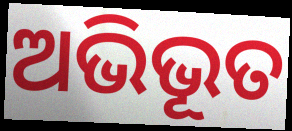
ଅଭିଭୂତ